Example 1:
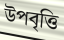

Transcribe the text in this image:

উপবৃত্তি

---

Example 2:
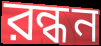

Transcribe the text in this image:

রন্ধন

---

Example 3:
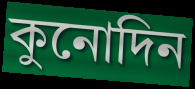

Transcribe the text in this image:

কুনোদিন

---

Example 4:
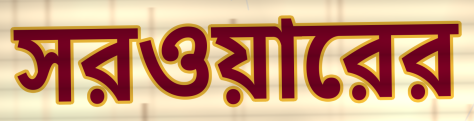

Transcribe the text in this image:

সরওয়ারের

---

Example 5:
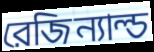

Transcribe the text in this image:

রেজিন্যাল্ড